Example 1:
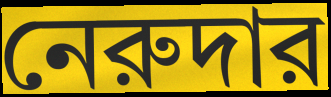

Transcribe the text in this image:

নেরুদার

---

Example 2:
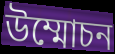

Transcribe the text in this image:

উম্মোচন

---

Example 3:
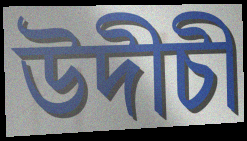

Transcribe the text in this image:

উদীচী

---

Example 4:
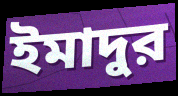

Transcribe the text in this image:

ইমাদুর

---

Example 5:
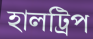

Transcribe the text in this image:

হালট্রিপ